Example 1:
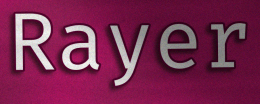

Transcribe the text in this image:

Rayer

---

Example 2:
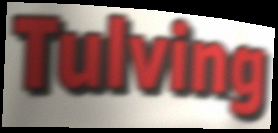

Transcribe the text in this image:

Tulving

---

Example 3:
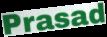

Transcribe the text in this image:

Prasad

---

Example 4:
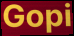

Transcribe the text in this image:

Gopi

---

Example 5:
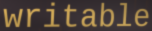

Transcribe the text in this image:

writable